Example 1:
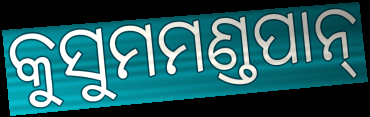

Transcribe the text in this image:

କୁସୁମମଣ୍ଡପାନ୍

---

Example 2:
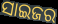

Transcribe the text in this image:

ସାଇଜର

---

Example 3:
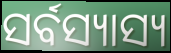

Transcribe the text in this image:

ସର୍ବସ୍ୟାସ୍ୟ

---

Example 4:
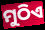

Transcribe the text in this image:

ମୁଠିଏ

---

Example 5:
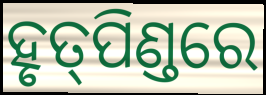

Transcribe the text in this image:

ହୃତ୍‌ପିଣ୍ଡରେ